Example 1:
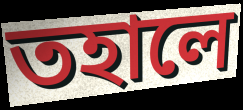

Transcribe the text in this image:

তহালে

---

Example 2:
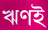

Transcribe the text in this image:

ঋণই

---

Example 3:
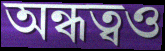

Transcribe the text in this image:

অন্ধত্বও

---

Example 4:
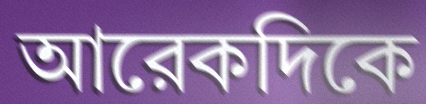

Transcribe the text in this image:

আরেকদিকে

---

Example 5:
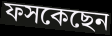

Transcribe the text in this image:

ফসকেছেন